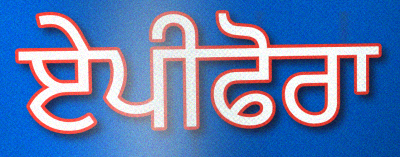
ਏਪੀਫੋਰਾ